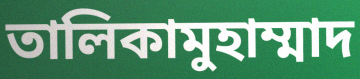
তালিকামুহাম্মাদ